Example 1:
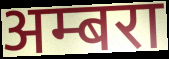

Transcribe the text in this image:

अम्बरा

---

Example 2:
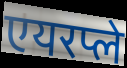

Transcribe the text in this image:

एयरप्ले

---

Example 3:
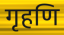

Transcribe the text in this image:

गृहणि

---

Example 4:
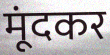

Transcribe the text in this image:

मूंदकर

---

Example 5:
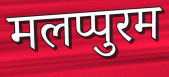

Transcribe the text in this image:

मलप्पुरम